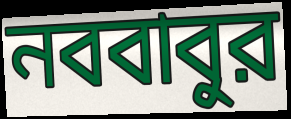
নববাবুর